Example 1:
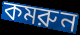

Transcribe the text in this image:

কমরুন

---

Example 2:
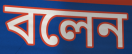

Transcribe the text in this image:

বলেন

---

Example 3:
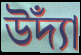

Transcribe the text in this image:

উদ্যাঁ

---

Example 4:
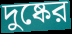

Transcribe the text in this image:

দুষ্কের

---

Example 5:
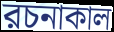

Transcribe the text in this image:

রচনাকাল